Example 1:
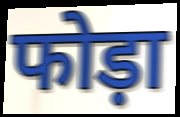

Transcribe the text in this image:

फोड़ा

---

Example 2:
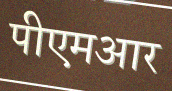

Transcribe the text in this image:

पीएमआर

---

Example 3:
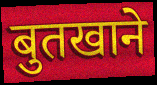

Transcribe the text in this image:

बुतखाने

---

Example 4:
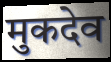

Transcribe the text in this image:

मुकदेव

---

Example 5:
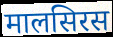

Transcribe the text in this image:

मालसिरस